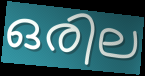
ഒരില